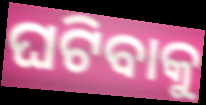
ଘଟିବାକୁ